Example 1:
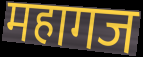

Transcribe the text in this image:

महागज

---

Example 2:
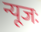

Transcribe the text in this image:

न्यूजः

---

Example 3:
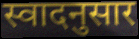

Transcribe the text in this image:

स्वादनुसार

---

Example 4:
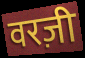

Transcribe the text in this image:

वरज़ी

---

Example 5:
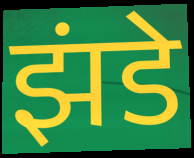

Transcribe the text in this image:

झंडे